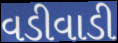
વડીવાડી